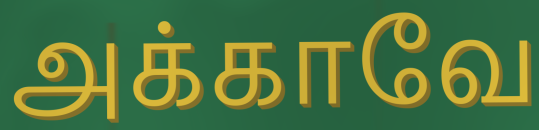
அக்காவே